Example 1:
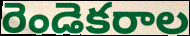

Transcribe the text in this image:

రెండెకరాల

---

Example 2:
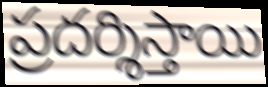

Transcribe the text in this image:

ప్రదర్శిస్తాయి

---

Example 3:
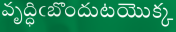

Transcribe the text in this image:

వృద్ధిఁబొందుటయొక్క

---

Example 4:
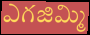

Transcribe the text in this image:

ఎగజిమ్మి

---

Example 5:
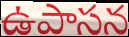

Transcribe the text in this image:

ఉపాసన